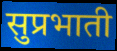
सुप्रभाती